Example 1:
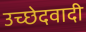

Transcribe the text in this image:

उच्छेदवादी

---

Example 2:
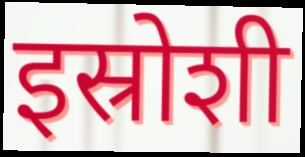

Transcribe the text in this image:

इस्रोशी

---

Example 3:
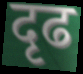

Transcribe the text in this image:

दृढ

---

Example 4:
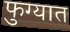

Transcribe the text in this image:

फुग्यात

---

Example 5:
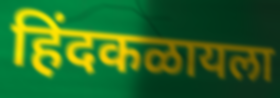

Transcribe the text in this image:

हिंदकळायला